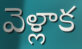
వెళ్లాక